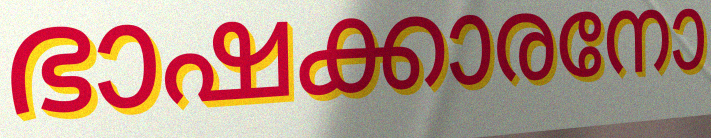
ഭാഷക്കാരനോ